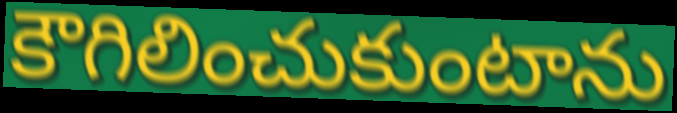
కౌగిలించుకుంటాను